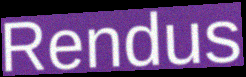
Rendus